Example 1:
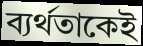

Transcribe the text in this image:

ব্যর্থতাকেই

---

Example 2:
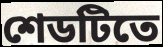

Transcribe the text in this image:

শেডটিতে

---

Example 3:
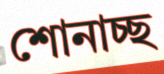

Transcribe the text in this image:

শোনাচ্ছ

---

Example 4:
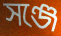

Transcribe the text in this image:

সঞ্জে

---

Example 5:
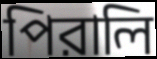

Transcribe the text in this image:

পিরালি